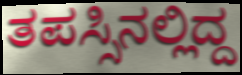
ತಪಸ್ಸಿನಲ್ಲಿದ್ದ